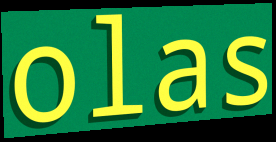
olas